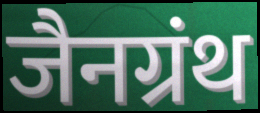
जैनग्रंथ